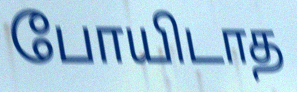
போயிடாத